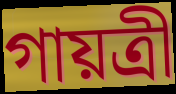
গায়ত্রী